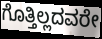
ಗೊತ್ತಿಲ್ಲದವರೇ